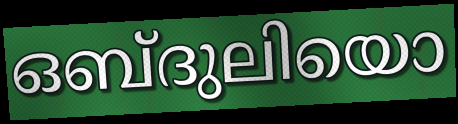
ഒബ്ദുലിയൊ